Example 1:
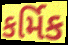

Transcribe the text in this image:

કર્મિક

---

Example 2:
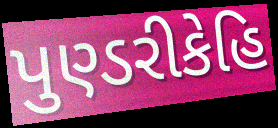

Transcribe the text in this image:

પુણ્ડરીકેહિ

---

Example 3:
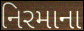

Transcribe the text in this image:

નિરમાના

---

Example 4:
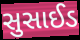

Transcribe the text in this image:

સુસાઈડ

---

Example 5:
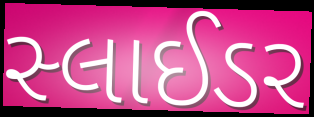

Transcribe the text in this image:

સ્લાઈડર